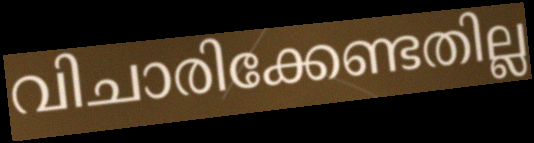
വിചാരിക്കേണ്ടതില്ല